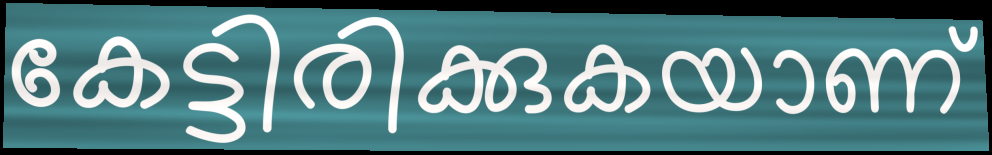
കേട്ടിരിക്കുകയാണ്